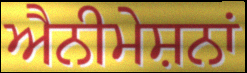
ਐਨੀਮੇਸ਼ਨਾਂ